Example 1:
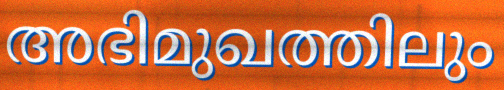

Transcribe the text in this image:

അഭിമുഖത്തിലും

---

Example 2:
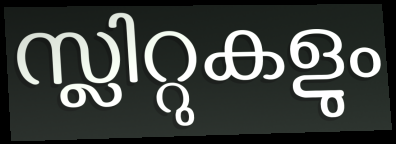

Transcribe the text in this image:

സ്ലിറ്റുകളും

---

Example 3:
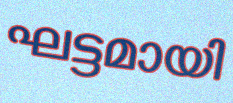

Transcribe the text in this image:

ഘട്ടമായി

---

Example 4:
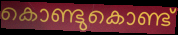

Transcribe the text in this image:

കൊണ്ടുകൊണ്ട്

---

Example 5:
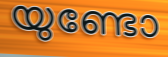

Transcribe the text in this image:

യുണ്ടോ